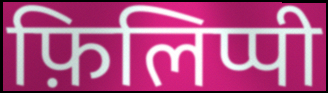
फ़िलिप्पी